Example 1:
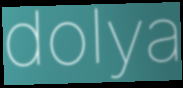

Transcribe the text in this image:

dolya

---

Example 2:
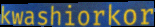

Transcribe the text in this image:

kwashiorkor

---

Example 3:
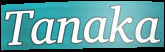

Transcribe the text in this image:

Tanaka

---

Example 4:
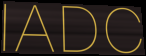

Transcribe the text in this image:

IADC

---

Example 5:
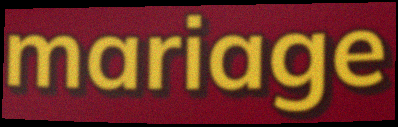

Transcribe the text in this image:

mariage